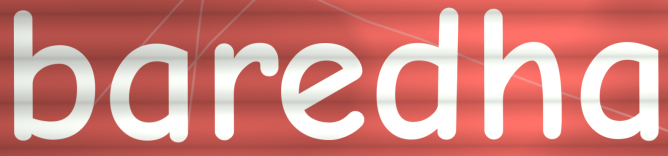
baredha